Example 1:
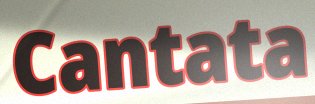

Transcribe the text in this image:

Cantata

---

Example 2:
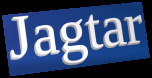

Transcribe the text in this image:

Jagtar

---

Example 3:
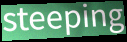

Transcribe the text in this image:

steeping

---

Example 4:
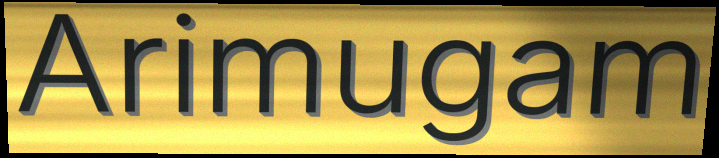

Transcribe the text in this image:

Arimugam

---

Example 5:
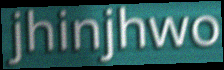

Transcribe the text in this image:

jhinjhwo